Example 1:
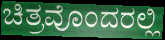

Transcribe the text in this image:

ಚಿತ್ರವೊಂದರಲ್ಲಿ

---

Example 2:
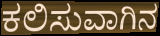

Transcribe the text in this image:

ಕಲಿಸುವಾಗಿನ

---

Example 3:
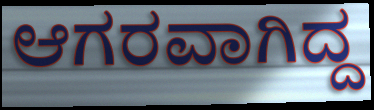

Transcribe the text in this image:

ಆಗರವಾಗಿದ್ದ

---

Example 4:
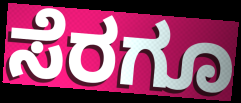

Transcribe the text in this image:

ಸೆರಗೂ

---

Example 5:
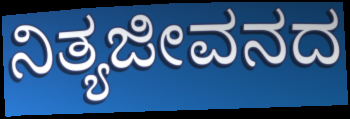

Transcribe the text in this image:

ನಿತ್ಯಜೀವನದ